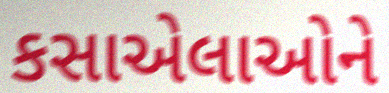
કસાએલાઓને